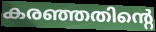
കരഞ്ഞതിന്റെ